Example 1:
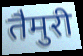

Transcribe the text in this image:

तैमुरी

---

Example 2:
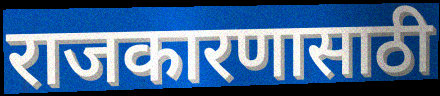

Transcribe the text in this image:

राजकारणासाठी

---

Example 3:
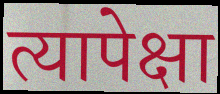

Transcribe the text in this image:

त्यापेक्षा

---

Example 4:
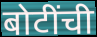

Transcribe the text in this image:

बोटींची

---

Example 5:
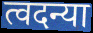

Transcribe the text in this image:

त्वदन्या